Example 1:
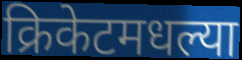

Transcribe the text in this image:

क्रिकेटमधल्या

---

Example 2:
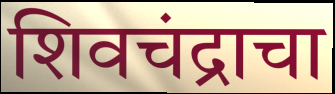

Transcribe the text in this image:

शिवचंद्राचा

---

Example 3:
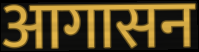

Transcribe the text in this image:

आगासन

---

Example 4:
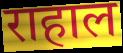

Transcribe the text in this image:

राहाल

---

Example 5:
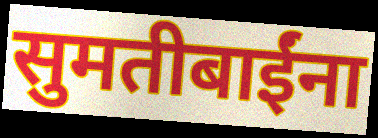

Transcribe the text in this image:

सुमतीबाईंना